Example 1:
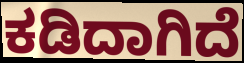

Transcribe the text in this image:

ಕಡಿದಾಗಿದೆ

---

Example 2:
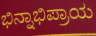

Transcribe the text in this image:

ಭಿನ್ನಾಭಿಪ್ರಾಯ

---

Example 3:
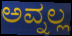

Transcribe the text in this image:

ಅವ್ನಲ್ಲ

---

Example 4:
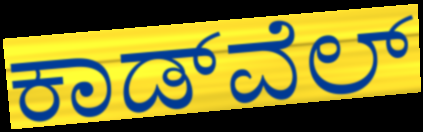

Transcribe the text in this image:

ಕಾಡ್‌ವೆಲ್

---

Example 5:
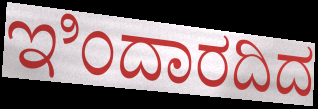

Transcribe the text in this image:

ಇಿಂದಾರದಿದ